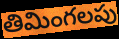
తిమింగలపు